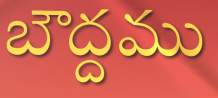
బౌద్దము